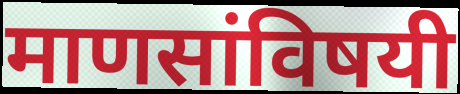
माणसांविषयी